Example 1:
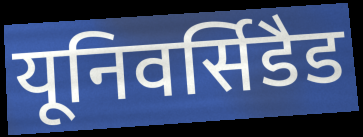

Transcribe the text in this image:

यूनिवर्सिडैड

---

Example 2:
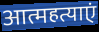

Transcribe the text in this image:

आत्महत्याएं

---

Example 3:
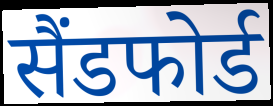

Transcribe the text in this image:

सैंडफोर्ड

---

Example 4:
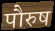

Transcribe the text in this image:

पौरुष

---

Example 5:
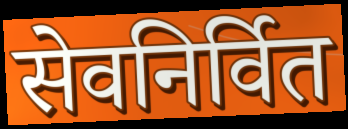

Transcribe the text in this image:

सेवनिर्वित